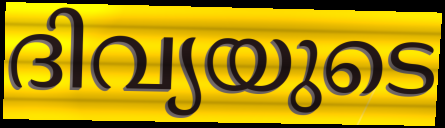
ദിവ്യയുടെ